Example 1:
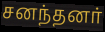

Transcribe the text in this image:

சனந்தனர்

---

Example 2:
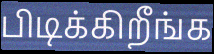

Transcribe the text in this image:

பிடிக்கிறீங்க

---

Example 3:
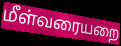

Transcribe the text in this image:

மீள்வரையறை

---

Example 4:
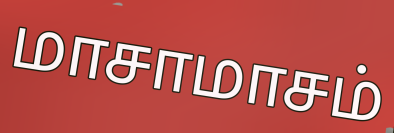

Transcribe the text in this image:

மாசாமாசம்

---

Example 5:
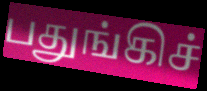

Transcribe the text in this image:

பதுங்கிச்